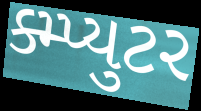
ક્મ્પ્યુટર